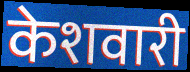
केशवारी